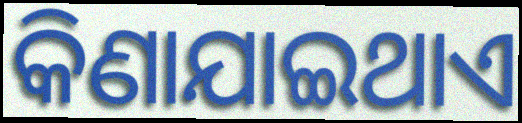
କିଣାଯାଇଥାଏ